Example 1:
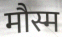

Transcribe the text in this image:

मौस्म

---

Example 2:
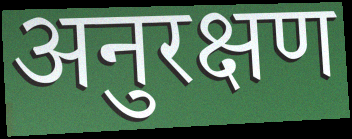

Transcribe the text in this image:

अनुरक्षण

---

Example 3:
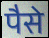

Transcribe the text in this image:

पैसे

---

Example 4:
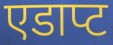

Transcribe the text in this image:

एडाप्ट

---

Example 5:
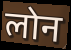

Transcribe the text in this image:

लोन